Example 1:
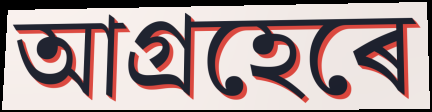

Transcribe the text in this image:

আগ্ৰহেৰে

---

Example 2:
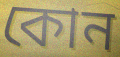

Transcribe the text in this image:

কোন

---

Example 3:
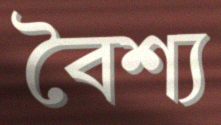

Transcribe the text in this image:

বৈশ্য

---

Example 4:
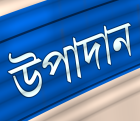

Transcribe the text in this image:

উপাদান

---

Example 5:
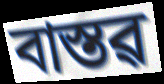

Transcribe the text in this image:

বাস্তৱ